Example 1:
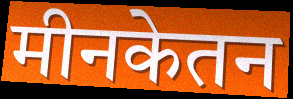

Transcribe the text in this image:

मीनकेतन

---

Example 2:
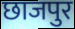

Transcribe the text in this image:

छाजपुर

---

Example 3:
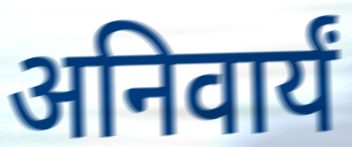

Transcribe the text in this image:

अनिवार्यं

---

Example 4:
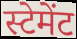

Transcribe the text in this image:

स्टेमेंट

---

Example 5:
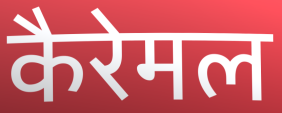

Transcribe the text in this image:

कैरेमल